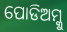
ପୋଡିଅମ୍କୁ